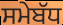
ਸਮੇਬੱਧ